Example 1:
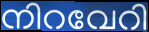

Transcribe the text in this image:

നിറവേറി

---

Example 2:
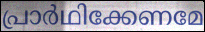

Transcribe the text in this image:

പ്രാർഥിക്കേണമേ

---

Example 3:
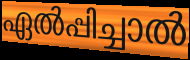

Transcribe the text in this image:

ഏൽപ്പിച്ചാൽ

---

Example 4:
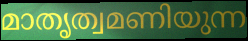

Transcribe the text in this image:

മാതൃത്വമണിയുന്ന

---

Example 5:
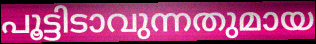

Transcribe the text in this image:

പൂട്ടിടാവുന്നതുമായ